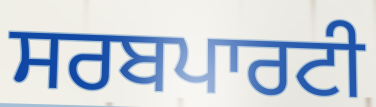
ਸਰਬਪਾਰਟੀ